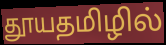
தூயதமிழில்